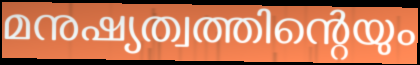
മനുഷ്യത്വത്തിന്റെയും